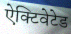
ऐक्टिवेटेड